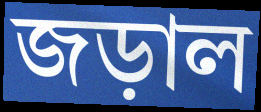
জড়াল